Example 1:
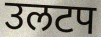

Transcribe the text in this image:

उलटप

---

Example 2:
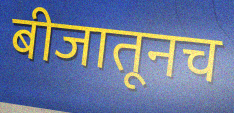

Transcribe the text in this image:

बीजातूनच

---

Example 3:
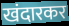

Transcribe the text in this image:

खंदारकर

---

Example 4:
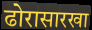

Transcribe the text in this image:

ढोरासारखा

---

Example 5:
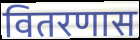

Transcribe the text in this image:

वितरणास